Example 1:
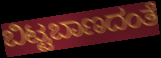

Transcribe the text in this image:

ಬಿಟ್ಟಬಾಣದಂತೆ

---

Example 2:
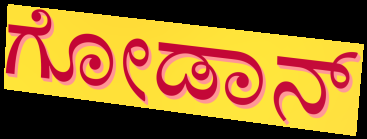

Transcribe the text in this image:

ಗೋಡಾನ್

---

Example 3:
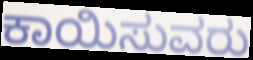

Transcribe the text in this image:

ಕಾಯಿಸುವರು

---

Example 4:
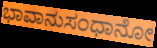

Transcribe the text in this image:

ಭಾವಾನುಸಂಧಾನೋ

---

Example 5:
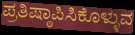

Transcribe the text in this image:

ಪ್ರತಿಷ್ಠಾಪಿಸಿಕೊಳ್ಳುವ